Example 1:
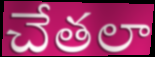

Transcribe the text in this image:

చేతలా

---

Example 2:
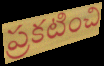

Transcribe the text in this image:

ప్రకటించి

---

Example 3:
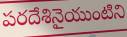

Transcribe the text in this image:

పరదేశినైయుంటిని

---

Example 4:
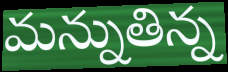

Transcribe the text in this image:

మన్నుతిన్న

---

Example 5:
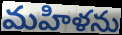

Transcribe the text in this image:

మహిళను